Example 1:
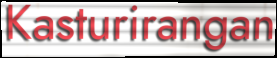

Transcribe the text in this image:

Kasturirangan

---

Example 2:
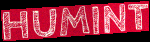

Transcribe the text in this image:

HUMINT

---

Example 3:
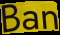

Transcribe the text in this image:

Ban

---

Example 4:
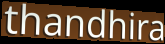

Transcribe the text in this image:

thandhira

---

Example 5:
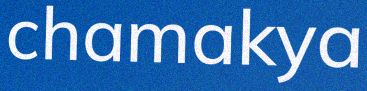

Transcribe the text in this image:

chamakya